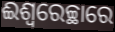
ଈଶ୍ୱରେଚ୍ଛାରେ